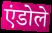
एंडोले